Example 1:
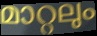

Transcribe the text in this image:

മാറ്റലും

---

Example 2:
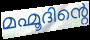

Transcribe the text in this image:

മഹ്മൂദിന്റെ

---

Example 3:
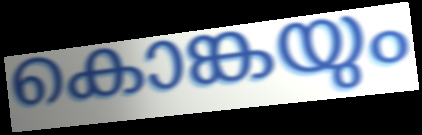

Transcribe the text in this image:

കൊങ്കയും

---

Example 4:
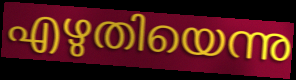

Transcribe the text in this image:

എഴുതിയെന്നു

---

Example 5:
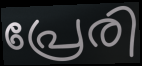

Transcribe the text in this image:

പ്രേരി